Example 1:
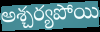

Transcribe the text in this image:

అశ్చర్యపోయి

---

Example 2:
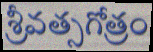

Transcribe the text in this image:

శ్రీవత్సగోత్రం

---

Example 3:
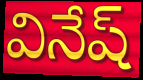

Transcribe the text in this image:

వినేష్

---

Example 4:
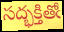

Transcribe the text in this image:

సద్భక్తితోఁ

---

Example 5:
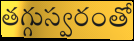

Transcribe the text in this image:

తగ్గుస్వరంతో